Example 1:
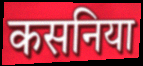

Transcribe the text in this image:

कसनिया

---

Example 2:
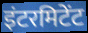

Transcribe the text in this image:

इंटरमिटेंट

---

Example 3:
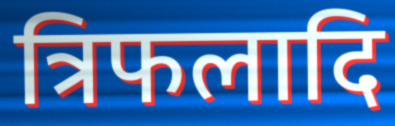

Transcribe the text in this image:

त्रिफलादि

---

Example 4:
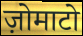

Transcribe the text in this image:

ज़ोमाटो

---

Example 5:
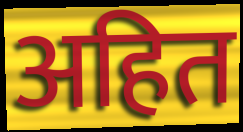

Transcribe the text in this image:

अहित